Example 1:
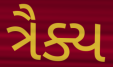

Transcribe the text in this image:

ત્રૈક્ય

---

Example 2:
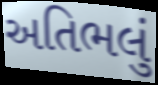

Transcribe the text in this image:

અતિભલું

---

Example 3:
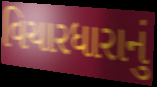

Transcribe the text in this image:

વિચારધારાનું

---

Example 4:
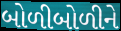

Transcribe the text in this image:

બોળીબોળીને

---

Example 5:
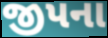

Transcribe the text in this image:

જીપના